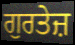
ਗੁਰਤੇਜ਼